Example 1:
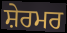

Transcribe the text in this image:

ਸ਼ੇਰਮਰ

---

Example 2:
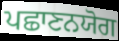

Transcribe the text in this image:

ਪਛਾਣਨਯੋਗ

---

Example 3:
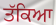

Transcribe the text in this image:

ਤੱਕਿਆ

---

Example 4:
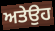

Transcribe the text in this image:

ਅਤੇਉਹ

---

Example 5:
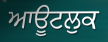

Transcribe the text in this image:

ਆਊਟਲੁਕ